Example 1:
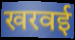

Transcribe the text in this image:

खरवई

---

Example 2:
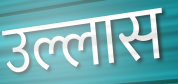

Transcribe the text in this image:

उल्‍लास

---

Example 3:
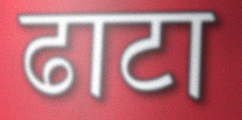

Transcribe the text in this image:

ढाटा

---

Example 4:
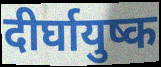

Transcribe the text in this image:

दीर्घायुष्क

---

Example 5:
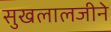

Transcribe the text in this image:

सुखलालजीने